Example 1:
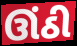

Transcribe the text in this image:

ઊંઠી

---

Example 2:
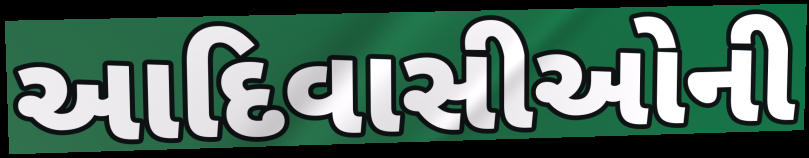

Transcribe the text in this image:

આદિવાસીઓની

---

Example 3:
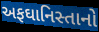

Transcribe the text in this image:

અફઘાનિસ્તાનો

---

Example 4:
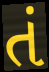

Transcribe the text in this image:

તં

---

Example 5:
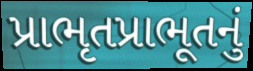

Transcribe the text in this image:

પ્રાભૃતપ્રાભૂતનું